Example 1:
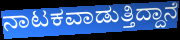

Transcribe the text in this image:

ನಾಟಕವಾಡುತ್ತಿದ್ದಾನೆ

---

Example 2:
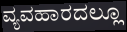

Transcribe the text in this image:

ವ್ಯವಹಾರದಲ್ಲೂ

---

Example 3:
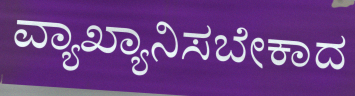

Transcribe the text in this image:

ವ್ಯಾಖ್ಯಾನಿಸಬೇಕಾದ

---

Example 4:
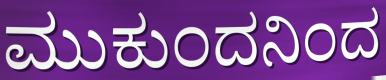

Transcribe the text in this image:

ಮುಕುಂದನಿಂದ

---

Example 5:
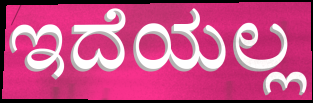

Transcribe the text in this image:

ಇದೆಯಲ್ಲ